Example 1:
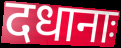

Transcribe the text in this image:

दधानाः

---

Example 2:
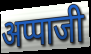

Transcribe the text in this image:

अप्पाजी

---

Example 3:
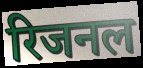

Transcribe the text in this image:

रिजनल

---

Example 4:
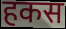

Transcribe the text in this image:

हकस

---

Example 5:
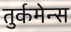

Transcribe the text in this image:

तुर्कमेन्स